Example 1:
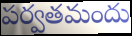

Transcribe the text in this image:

పర్వతమందు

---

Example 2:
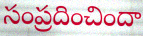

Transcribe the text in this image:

సంప్రదించిందా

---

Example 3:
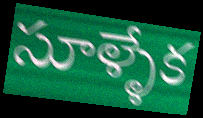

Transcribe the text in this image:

సూళ్ళేక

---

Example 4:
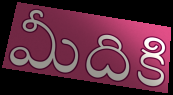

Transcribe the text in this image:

మీదికి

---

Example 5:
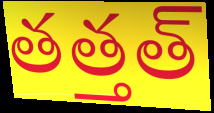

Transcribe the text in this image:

తత్తత్